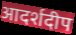
आदर्शदीप